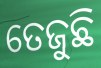
ତେଜୁଛି